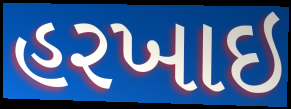
હરખાઇ